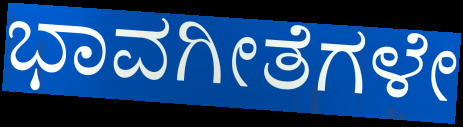
ಭಾವಗೀತೆಗಳೇ